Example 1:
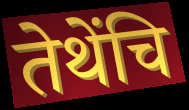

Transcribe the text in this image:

तेथेंचि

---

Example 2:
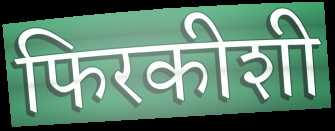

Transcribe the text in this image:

फिरकीशी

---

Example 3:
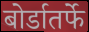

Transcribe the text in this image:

बोर्डातर्फे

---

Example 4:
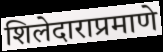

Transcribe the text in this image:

शिलेदाराप्रमाणे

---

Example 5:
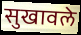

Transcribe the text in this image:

सुखावले